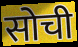
सोची